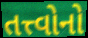
તત્ત્વોનો